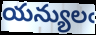
యన్యులఁ